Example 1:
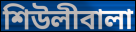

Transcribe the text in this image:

শিউলীবালা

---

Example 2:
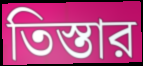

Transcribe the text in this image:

তিস্তার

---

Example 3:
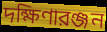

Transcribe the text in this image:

দক্ষিণারঞ্জন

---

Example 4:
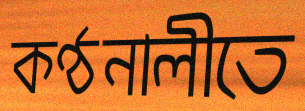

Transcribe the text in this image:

কণ্ঠনালীতে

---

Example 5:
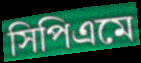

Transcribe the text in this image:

সিপিএমে